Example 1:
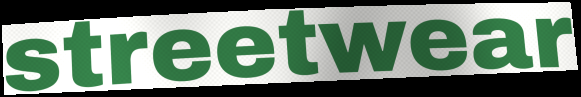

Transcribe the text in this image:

streetwear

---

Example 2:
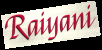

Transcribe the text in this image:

Raiyani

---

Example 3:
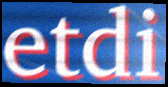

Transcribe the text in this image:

etdi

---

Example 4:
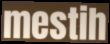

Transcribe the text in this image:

mestih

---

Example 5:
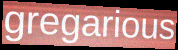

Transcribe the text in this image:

gregarious